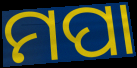
ମପା